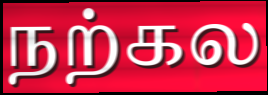
நற்கல